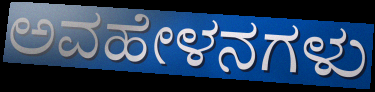
ಅವಹೇಳನಗಳು